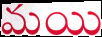
మయి